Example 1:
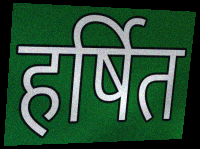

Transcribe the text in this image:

हर्षित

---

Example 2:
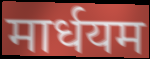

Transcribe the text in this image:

मार्धयम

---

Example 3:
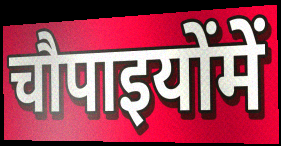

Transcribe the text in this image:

चौपाइयोंमें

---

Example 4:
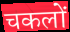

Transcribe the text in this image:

चकलों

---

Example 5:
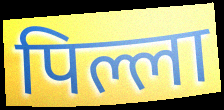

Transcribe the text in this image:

पिल्ला